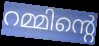
റമ്മിന്റെ